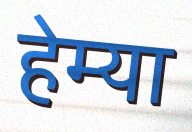
हेम्या